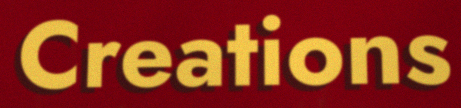
Creations